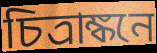
চিত্রাঙ্কনে